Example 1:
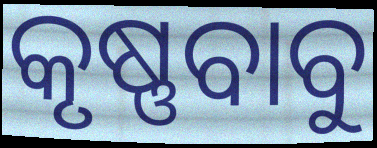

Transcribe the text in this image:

କୃଷ୍ଣବାବୁ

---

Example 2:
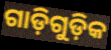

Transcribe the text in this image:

ଗାଡ଼ିଗୁଡ଼ିକ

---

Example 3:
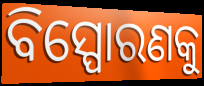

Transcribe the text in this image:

ବିସ୍ପୋରଣକୁ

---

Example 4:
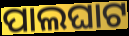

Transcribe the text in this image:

ପାଲଘାଟ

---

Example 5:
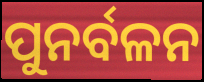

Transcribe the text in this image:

ପୁନର୍ବଳନ